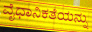
ವೈಧಾನಿಕತೆಯನ್ನು